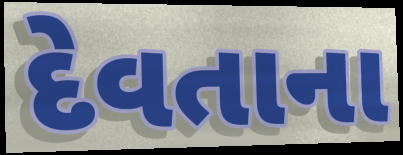
દેવતાના